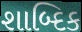
શાબ્દિક